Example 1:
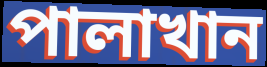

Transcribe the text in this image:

পালাখান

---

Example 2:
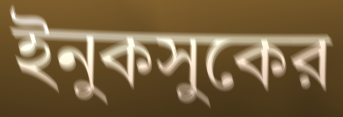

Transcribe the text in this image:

ইনুকসুকের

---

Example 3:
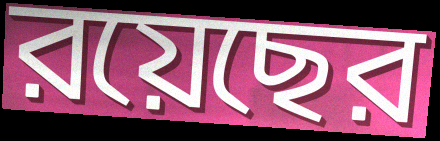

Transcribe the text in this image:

রয়েছের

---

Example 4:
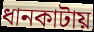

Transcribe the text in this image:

ধানকাটায়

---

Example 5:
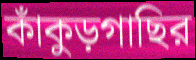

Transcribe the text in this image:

কাঁকুড়গাছির